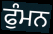
ਫੁੰਮਨ